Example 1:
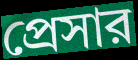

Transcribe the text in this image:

প্রেসার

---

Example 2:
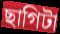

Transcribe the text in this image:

ছাগিটা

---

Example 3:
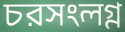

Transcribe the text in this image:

চরসংলগ্ন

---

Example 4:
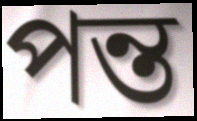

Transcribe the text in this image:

পন্ত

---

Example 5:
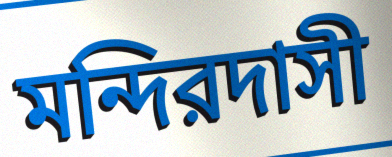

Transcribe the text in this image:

মন্দিরদাসী